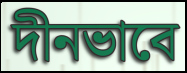
দীনভাবে